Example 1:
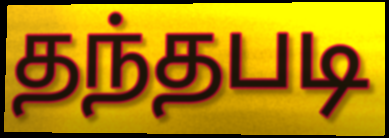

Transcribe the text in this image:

தந்தபடி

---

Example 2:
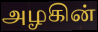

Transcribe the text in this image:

அழகின்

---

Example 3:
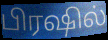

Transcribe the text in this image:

பிரஷில்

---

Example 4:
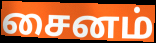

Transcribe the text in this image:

சைனம்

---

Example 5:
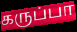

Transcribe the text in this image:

கருப்பா